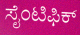
ಸೈಂಟಿಫಿಕ್